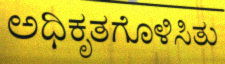
ಅಧಿಕೃತಗೊಳಿಸಿತು